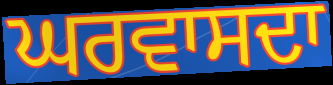
ਘਰਵਾਸਦਾ